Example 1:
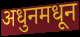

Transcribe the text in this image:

अधुनमधून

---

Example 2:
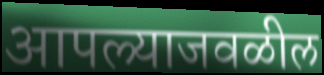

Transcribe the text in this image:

आपल्याजवळील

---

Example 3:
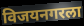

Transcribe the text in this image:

विजयनगरला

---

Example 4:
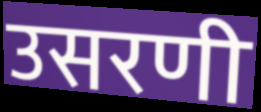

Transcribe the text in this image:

उसरणी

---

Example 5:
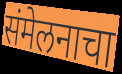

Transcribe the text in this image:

संमेलनाचा